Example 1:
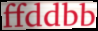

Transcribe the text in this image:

ffddbb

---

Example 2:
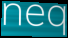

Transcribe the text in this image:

neq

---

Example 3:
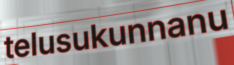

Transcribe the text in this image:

telusukunnanu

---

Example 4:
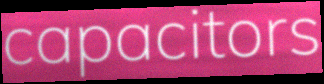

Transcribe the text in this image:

capacitors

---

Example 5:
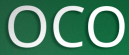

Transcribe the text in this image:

OCO